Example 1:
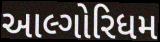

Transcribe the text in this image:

આલ્ગોરિધમ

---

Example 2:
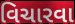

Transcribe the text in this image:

વિચારવા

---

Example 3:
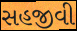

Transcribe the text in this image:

સહજીવી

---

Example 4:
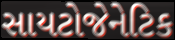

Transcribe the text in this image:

સાયટોજેનેટિક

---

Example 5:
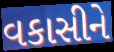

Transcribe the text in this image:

વકાસીને